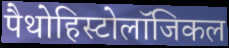
पैथोहिस्टोलॉजिकल